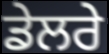
ਡੇਲਰੇ